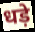
धड़े